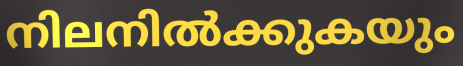
നിലനിൽക്കുകയും